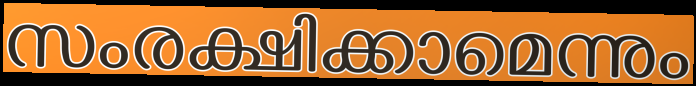
സംരക്ഷിക്കാമെന്നും